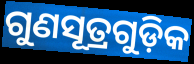
ଗୁଣସୂତ୍ରଗୁଡ଼ିକ